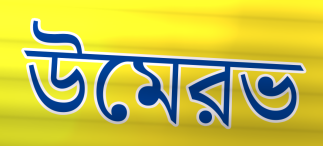
উমেরভ